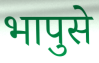
भापुसे